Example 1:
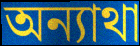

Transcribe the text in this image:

অন্যাথা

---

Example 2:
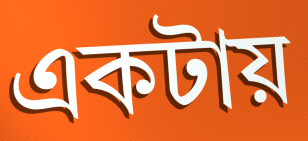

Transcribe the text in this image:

একটায়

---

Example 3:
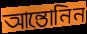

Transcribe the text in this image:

আন্তোনিন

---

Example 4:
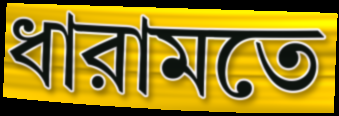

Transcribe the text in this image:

ধারামতে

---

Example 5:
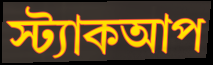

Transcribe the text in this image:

স্ট্যাকআপ